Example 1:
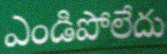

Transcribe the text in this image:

ఎండిపోలేదు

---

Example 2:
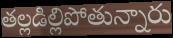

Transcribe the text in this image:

తల్లడిల్లిపోతున్నారు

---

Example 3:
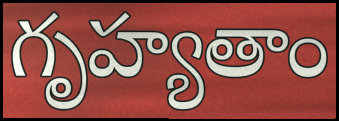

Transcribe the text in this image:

గృహ్యతాం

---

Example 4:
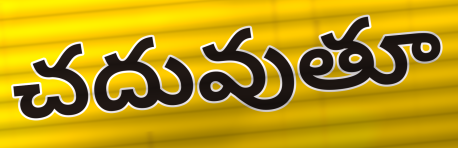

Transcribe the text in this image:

చదువుతూ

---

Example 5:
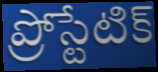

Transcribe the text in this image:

ప్రోస్టేటిక్